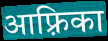
आफ़्रिका